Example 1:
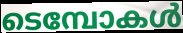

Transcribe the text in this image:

ടെമ്പോകൾ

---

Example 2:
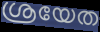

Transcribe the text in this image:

ശ്രയേത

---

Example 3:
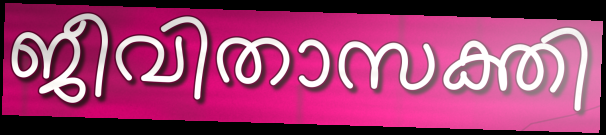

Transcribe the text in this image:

ജീവിതാസക്തി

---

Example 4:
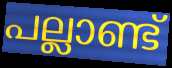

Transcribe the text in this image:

പല്ലാണ്ട്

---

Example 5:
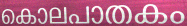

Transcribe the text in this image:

കൊലപാതകം